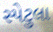
સ્પેટુલા